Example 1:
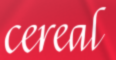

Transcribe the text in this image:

cereal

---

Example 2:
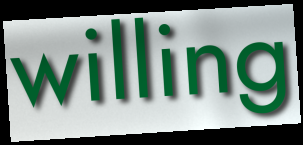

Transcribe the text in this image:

willing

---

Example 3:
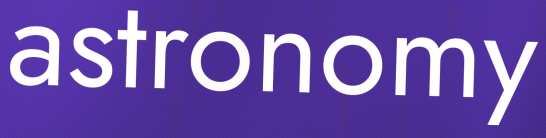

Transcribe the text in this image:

astronomy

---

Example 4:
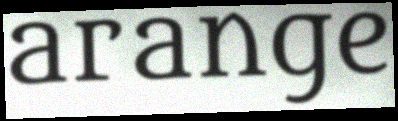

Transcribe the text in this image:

arange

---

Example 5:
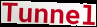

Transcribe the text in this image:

Tunnel